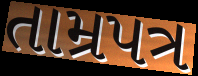
તામ્રપત્ર